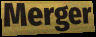
Merger